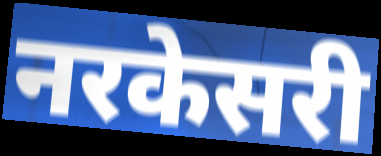
नरकेसरी